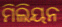
ମିଲିୟନ